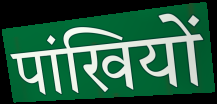
पांखियों